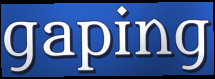
gaping